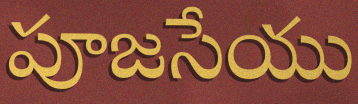
పూజసేయు